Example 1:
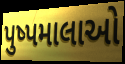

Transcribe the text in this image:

પુષ્પમાલાઓ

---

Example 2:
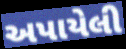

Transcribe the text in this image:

અપાયેલી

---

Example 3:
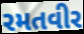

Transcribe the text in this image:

રમતવીર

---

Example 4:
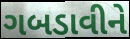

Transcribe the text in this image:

ગબડાવીને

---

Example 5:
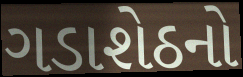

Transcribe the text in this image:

ગડાશેઠનો